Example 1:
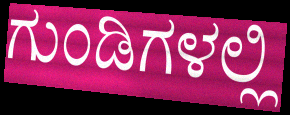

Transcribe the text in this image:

ಗುಂಡಿಗಳಲ್ಲಿ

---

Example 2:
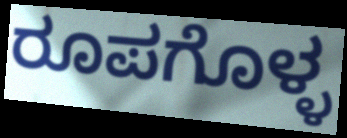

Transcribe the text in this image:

ರೂಪಗೊಳ್ಳ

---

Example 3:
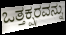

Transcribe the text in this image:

ಒತ್ತಕ್ಷರವನ್ನು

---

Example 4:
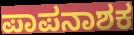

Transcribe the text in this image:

ಪಾಪನಾಶಕ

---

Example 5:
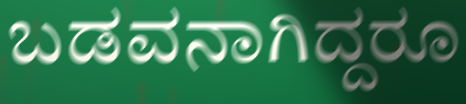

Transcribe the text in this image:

ಬಡವನಾಗಿದ್ದರೂ